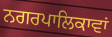
ਨਗਰਪਾਲਿਕਾਵਾਂ